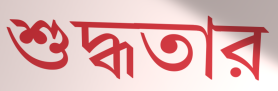
শুদ্ধতার